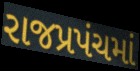
રાજપ્રપંચમાં